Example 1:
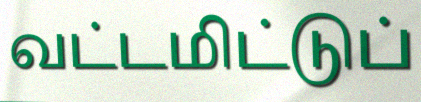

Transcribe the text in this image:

வட்டமிட்டுப்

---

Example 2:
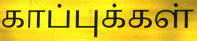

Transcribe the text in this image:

காப்புக்கள்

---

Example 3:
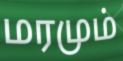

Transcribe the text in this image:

மரமும்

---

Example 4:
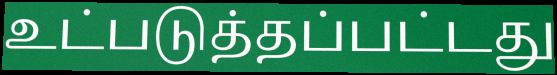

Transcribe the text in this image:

உட்படுத்தப்பட்டது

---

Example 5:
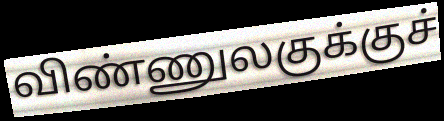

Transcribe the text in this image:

விண்ணுலகுக்குச்